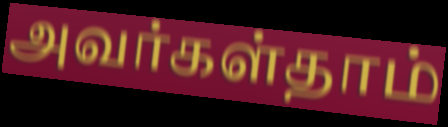
அவர்கள்தாம்